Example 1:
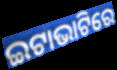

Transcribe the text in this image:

ଇଟାଭାଟିରେ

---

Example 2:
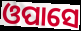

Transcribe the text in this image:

ଓପାସେ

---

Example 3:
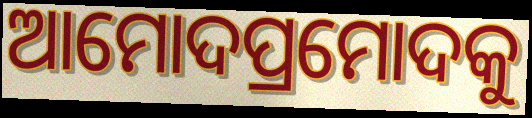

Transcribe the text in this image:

ଆମୋଦପ୍ରମୋଦକୁ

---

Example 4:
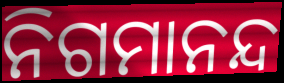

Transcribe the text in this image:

ନିଗମାନନ୍ଦ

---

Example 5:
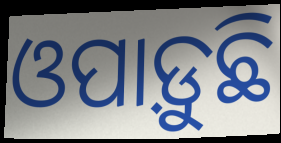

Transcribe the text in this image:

ଓପାଡ଼ୁଛି